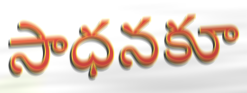
సాధనకూ